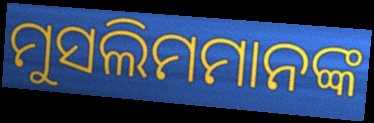
ମୁସଲିମମାନଙ୍କ